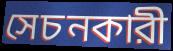
সেচনকারী